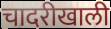
चादरीखाली